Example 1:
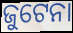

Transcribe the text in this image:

ଜୁଟେନା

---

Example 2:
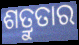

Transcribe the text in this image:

ଶତ୍ରୁତାର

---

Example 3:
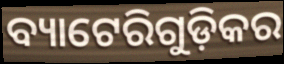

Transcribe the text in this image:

ବ୍ୟାଟେରିଗୁଡ଼ିକର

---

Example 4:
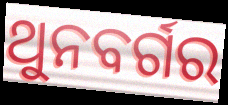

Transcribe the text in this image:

ଥୁନବର୍ଗର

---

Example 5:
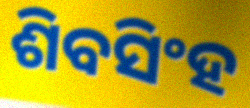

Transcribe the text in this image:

ଶିବସିଂହ